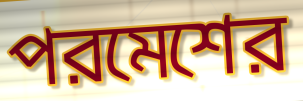
পরমেশের